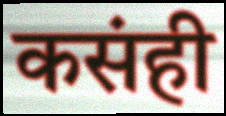
कसंही